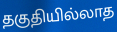
தகுதியில்லாத